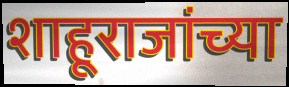
शाहूराजांच्या